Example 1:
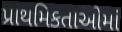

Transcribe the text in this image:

પ્રાથમિકતાઓમાં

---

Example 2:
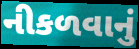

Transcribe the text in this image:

નીકળવાનું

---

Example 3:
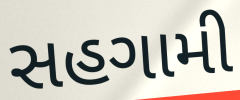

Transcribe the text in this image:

સહગામી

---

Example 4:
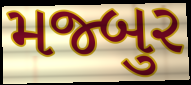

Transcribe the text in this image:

મજ્બુર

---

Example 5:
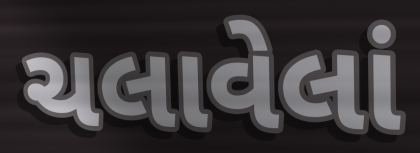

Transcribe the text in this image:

ચલાવેલાં